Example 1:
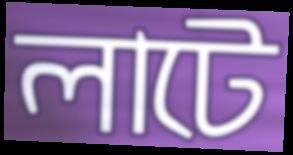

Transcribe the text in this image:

লাটে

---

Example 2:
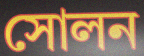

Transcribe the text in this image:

সোলন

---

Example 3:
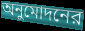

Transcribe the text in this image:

অনুমোদনের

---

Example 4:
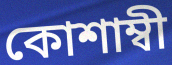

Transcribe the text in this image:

কোশাম্বী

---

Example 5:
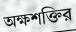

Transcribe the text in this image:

অক্ষশক্তির